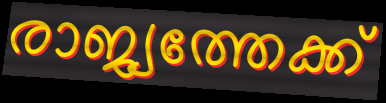
രാജ്യത്തേക്ക്